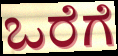
ಒರೆಗೆ